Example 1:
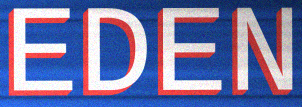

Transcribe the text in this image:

EDEN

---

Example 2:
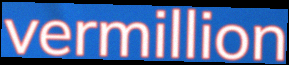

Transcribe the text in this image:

vermillion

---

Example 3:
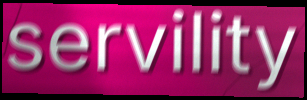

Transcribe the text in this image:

servility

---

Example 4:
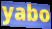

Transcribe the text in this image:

yabo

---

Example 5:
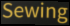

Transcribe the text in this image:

Sewing